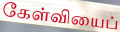
கேள்வியைப்